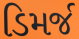
ડિમર્જ